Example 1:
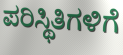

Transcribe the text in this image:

ಪರಿಸ್ಥಿತಿಗಳಿಗೆ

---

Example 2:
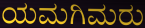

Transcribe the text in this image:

ಯಮಗಿಮರು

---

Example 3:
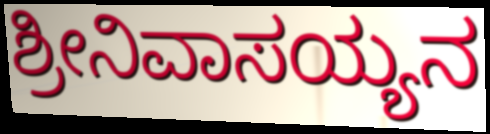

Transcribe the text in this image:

ಶ್ರೀನಿವಾಸಯ್ಯನ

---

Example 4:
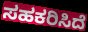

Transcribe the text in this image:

ಸಹಕರಿಸಿದೆ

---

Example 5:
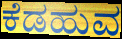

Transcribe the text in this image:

ಕೆಡಹುವ